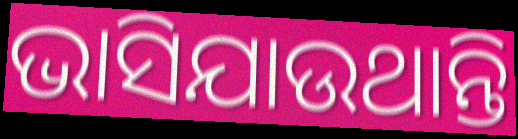
ଭାସିଯାଉଥାନ୍ତି